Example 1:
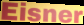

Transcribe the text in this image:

Eisner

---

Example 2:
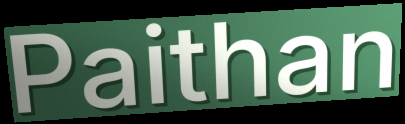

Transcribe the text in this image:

Paithan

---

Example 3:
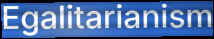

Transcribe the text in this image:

Egalitarianism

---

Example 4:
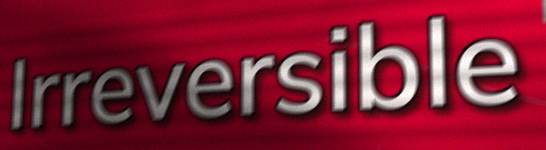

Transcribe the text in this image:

Irreversible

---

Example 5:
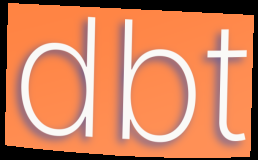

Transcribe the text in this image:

dbt